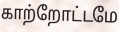
காற்றோட்டமே